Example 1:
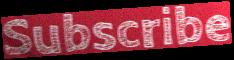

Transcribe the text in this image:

Subscribe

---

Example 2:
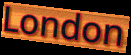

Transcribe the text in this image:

London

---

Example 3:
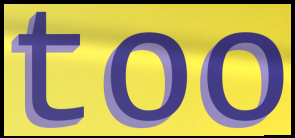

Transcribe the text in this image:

too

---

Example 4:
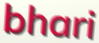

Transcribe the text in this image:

bhari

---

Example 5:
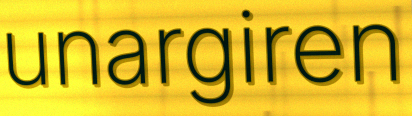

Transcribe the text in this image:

unargiren